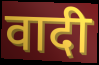
वादी